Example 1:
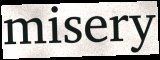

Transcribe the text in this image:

misery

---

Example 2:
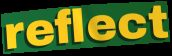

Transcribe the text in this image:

reflect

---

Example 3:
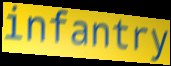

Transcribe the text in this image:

infantry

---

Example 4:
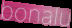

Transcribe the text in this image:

bonalu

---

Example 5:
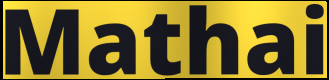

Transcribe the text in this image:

Mathai